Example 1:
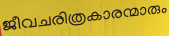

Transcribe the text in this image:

ജീവചരിത്രകാരന്മാരും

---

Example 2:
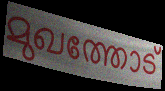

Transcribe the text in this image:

മുഖത്തോട്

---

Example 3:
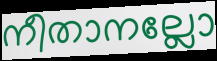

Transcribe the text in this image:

നീതാനല്ലോ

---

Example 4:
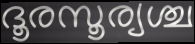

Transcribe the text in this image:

ദൂരസൂര്യശ്ച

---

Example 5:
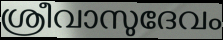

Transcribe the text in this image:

ശ്രീവാസുദേവം